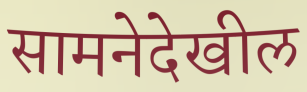
सामनेदेखील